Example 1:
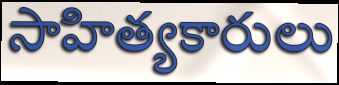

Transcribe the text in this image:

సాహిత్యకారులు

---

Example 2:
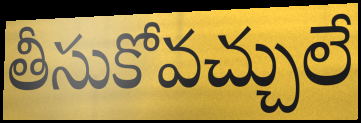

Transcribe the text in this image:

తీసుకోవచ్చులే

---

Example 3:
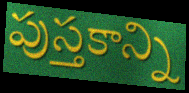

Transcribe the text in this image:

పుస్తకాన్ని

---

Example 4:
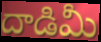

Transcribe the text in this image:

దాడిమీ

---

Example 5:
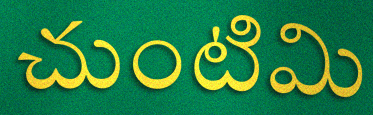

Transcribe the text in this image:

చుంటిమి